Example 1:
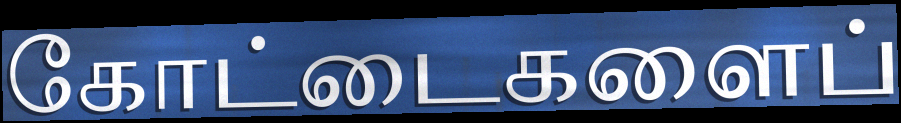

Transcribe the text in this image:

கோட்டைகளைப்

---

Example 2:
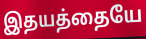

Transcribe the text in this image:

இதயத்தையே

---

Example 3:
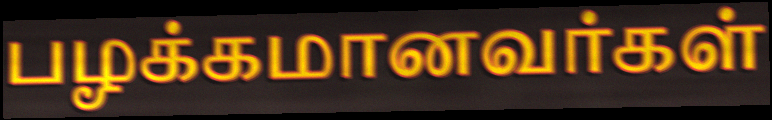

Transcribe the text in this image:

பழக்கமானவர்கள்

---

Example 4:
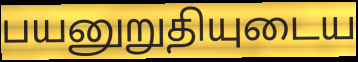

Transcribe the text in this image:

பயனுறுதியுடைய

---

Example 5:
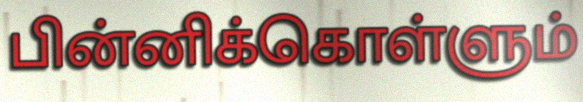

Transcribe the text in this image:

பின்னிக்கொள்ளும்